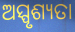
ଅସ୍ପୃଶ୍ୟତା